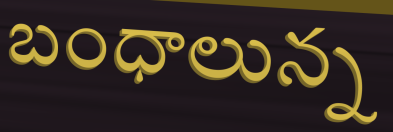
బంధాలున్న